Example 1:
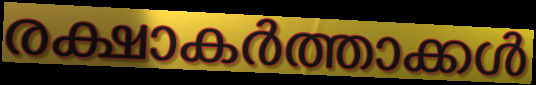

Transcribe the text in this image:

രക്ഷാകർത്താക്കൾ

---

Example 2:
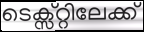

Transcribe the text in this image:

ടെക്സ്റ്റിലേക്ക്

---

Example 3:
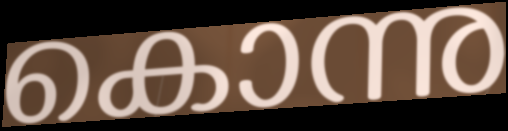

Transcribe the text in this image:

കൊന്നു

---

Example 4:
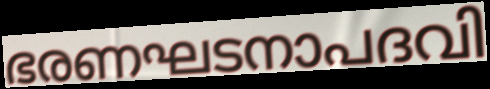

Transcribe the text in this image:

ഭരണഘടനാപദവി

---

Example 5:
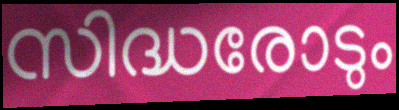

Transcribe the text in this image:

സിദ്ധരോടും